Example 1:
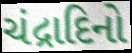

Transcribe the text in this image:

ચંદ્રાદિનો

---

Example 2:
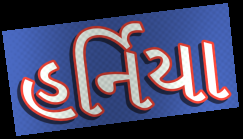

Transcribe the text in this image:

હર્નિયા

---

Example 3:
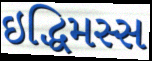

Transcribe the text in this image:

ઇદ્ધિમસ્સ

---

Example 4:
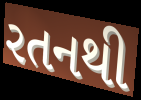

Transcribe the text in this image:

રતનથી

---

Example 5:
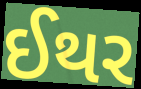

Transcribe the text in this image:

ઈથર